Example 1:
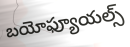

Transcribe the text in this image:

బయోఫ్యూయల్స్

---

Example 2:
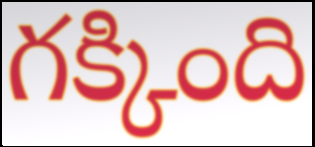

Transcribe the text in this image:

గక్కింది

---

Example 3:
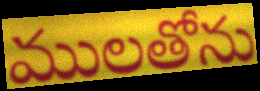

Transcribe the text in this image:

ములతోను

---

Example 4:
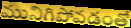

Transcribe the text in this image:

మునిగిపోవడంతో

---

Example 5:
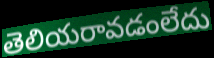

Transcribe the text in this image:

తెలియరావడంలేదు